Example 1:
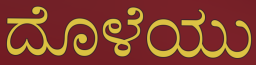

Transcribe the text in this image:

ದೊಳೆಯು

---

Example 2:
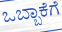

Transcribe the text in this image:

ಒಬ್ಬಾಕೆಗೆ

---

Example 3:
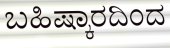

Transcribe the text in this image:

ಬಹಿಷ್ಕಾರದಿಂದ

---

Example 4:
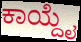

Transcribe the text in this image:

ಕಾಯ್ದೈ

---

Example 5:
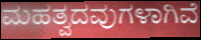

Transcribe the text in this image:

ಮಹತ್ವದವುಗಳಾಗಿವೆ